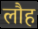
लौह